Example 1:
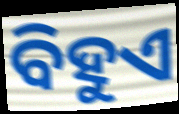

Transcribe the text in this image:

ବିହୁଏ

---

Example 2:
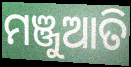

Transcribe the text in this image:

ମଞ୍ଜୁଆତି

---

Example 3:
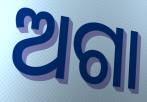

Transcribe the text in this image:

ଅଗା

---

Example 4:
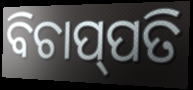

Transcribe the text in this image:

ବିଚାପ୍‌ପତି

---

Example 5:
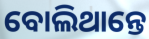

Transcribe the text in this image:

ବୋଲିଥାନ୍ତେ